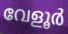
വേളൂർ